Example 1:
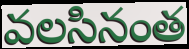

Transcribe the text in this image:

వలసినంత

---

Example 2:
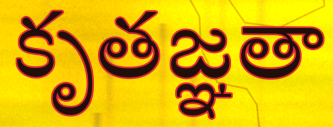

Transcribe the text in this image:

కృతజ్ఞతా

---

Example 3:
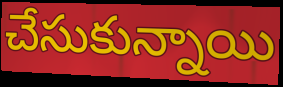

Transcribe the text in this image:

చేసుకున్నాయి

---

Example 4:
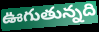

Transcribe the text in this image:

ఊగుతున్నది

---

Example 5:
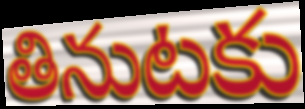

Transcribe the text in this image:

తినుటకు